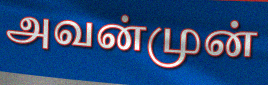
அவன்முன்